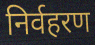
निर्वहरण